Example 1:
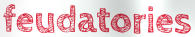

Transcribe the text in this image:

feudatories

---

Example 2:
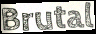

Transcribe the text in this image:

Brutal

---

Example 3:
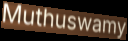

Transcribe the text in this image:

Muthuswamy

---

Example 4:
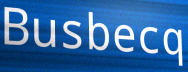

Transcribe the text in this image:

Busbecq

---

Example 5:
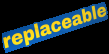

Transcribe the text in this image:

replaceable